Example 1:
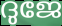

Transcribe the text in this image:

ദുജേ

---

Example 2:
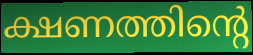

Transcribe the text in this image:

ക്ഷണത്തിന്റെ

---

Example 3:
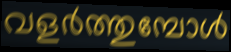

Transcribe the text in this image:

വളർത്തുമ്പോൾ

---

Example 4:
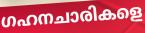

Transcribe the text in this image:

ഗഹനചാരികളെ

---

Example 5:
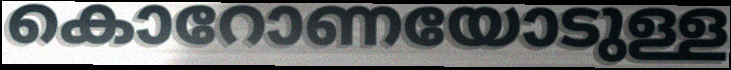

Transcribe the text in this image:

കൊറോണയോടുള്ള